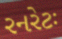
રનરેટઃ